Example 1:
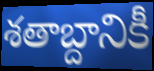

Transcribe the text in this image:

శతాబ్దానికీ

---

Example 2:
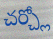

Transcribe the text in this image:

చర్చ్లో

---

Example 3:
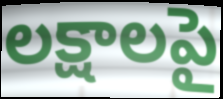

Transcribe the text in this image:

లక్షాలపై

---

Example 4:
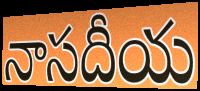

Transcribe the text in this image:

నాసదీయ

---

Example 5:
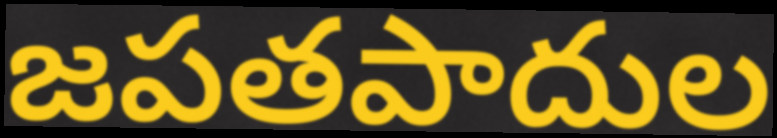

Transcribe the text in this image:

జపతపాదుల